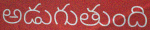
అడుగుతుంది